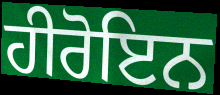
ਹੀਰੋਇਨ